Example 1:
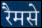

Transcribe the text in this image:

रैमसे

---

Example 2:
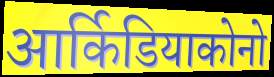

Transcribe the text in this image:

आर्किडियाकोनो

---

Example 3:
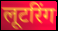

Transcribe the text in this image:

लूटरिंग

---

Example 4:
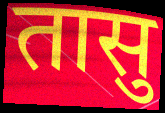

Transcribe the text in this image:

तासु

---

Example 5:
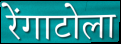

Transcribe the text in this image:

रेंगाटोला